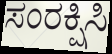
ಸಂರಕ್ಷಿಸಿ